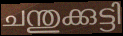
ചന്തുക്കുട്ടി